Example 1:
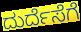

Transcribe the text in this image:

ದುರ್ದೆಸೆಗೆ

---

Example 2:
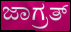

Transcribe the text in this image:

ಜಾಗ್ರತ್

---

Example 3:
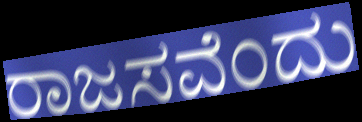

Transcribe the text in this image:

ರಾಜಸವೆಂದು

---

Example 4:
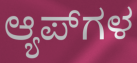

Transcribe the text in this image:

ಆ್ಯಪ್‌ಗಳ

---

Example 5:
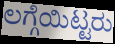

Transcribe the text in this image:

ಲಗ್ಗೆಯಿಟ್ಟರು